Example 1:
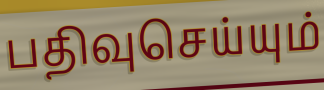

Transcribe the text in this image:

பதிவுசெய்யும்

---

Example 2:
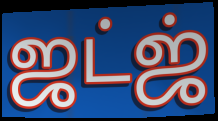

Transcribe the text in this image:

ஜட்ஜ்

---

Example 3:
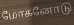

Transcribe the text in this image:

மோகனோடு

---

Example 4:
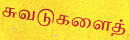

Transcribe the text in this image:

சுவடுகளைத்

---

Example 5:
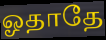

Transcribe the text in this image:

ஓதாதே